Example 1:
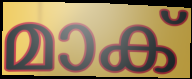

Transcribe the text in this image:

മാക്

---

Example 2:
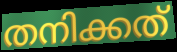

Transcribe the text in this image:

തനിക്കത്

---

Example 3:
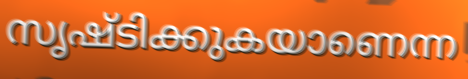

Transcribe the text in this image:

സൃഷ്ടിക്കുകയാണെന്ന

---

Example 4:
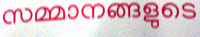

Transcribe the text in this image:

സമ്മാനങ്ങളുടെ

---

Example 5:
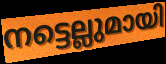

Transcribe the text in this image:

നട്ടെല്ലുമായി